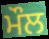
ਮੌਲ